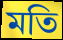
মতি